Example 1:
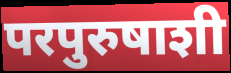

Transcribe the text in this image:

परपुरुषाशी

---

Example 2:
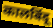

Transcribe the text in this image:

कालबिंदू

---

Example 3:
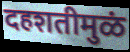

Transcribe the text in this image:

दहशतीमुळं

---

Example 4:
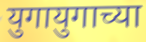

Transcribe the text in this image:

युगायुगाच्या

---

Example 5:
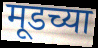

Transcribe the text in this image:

मूडच्या